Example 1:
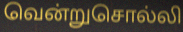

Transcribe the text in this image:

வென்றுசொல்லி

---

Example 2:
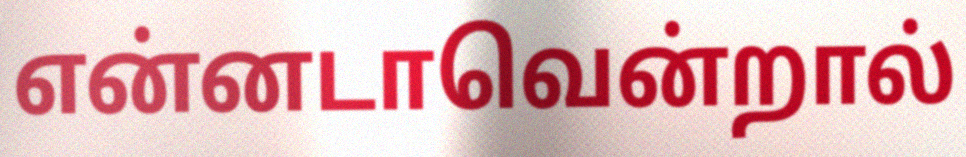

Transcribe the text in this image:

என்னடாவென்றால்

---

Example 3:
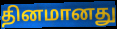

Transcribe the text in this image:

தினமானது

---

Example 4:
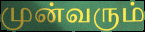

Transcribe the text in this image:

முன்வரும்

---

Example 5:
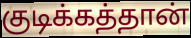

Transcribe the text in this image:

குடிக்கத்தான்